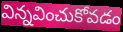
విన్నవించుకోవడం